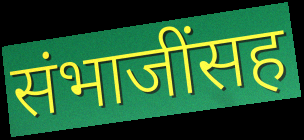
संभाजींसह